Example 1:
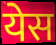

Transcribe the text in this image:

येस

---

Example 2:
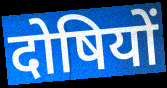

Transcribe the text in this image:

दोषियों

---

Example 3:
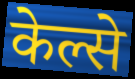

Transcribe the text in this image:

केल्से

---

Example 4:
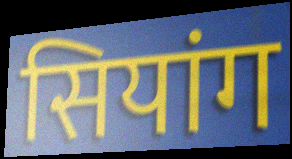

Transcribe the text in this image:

सियांग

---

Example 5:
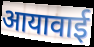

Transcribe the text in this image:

आयावाई